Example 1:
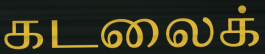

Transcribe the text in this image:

கடலைக்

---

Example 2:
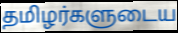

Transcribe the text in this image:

தமிழர்களுடைய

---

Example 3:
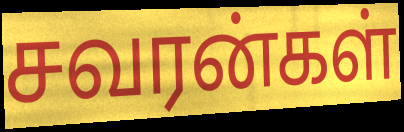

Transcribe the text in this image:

சவரன்கள்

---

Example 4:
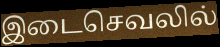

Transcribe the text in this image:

இடைசெவலில்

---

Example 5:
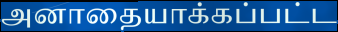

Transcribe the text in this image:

அனாதையாக்கப்பட்ட